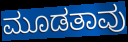
ಮೂಡತಾವು